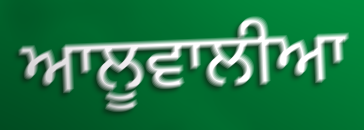
ਆਲੂਵਾਲੀਆ